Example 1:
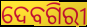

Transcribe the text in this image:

ଦେବଗିରୀ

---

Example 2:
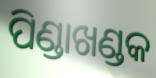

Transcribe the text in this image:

ପିଣ୍ଡାଖଣ୍ଡକ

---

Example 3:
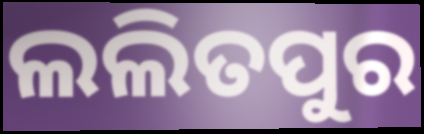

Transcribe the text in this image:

ଲଲିତପୁର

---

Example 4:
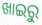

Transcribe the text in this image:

ଖାଇରୁ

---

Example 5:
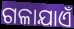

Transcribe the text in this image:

ଗଳାଯାଏଁ